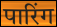
पारिंग